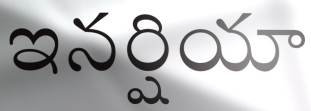
ఇనర్షియా